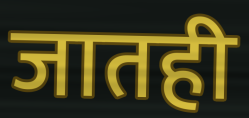
जातही